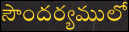
సౌందర్యములో